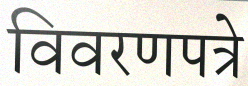
विवरणपत्रे